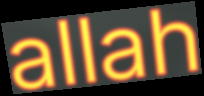
allah